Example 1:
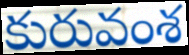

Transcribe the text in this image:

కురువంశ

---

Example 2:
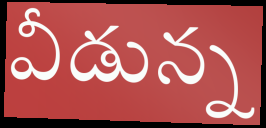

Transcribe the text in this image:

వీడున్న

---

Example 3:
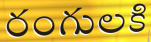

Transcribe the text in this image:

రంగులకి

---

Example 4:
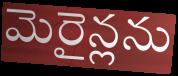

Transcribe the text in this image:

మెరైన్లను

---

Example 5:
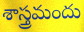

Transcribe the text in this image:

శాస్త్రమందు